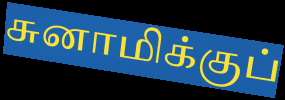
சுனாமிக்குப்